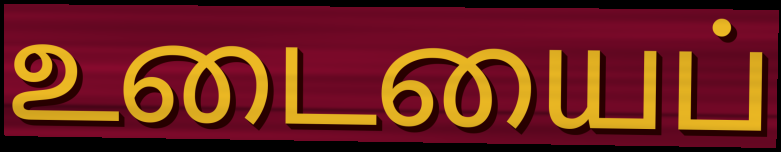
உடையைப்